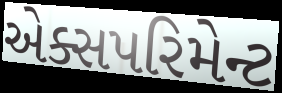
એક્સપરિમેન્ટ